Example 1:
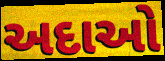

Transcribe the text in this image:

અદાઓ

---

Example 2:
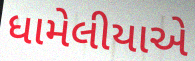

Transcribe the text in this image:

ધામેલીયાએ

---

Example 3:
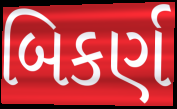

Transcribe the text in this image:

બિકર્ણ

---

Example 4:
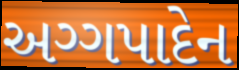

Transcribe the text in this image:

અગ્ગપાદેન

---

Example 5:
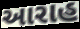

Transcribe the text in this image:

આરાહ